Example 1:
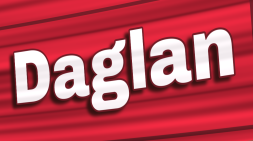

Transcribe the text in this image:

Daglan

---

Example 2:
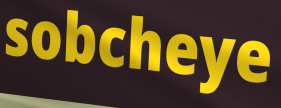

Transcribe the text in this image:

sobcheye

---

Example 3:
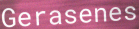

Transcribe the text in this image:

Gerasenes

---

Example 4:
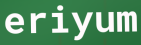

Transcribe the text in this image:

eriyum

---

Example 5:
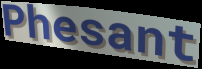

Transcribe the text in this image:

Phesant